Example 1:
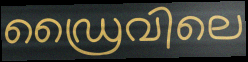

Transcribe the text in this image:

ഡ്രൈവിലെ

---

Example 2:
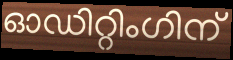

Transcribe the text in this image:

ഓഡിറ്റിംഗിന്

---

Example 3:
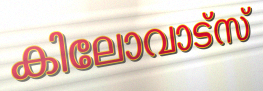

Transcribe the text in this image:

കിലോവാട്സ്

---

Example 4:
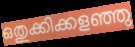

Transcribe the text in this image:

ഒതുക്കിക്കളഞ്ഞു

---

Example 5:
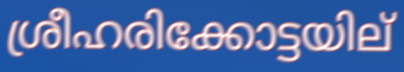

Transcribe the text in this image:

ശ്രീഹരിക്കോട്ടയില്